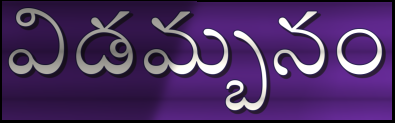
విడమ్బనం